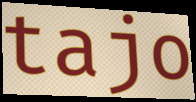
tajo